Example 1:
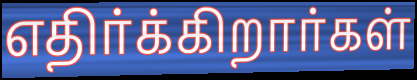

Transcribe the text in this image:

எதிர்க்கிறார்கள்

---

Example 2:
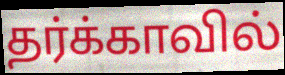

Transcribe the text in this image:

தர்க்காவில்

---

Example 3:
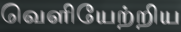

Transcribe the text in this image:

வெளியேற்றிய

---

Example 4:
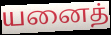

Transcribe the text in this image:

யனைத்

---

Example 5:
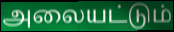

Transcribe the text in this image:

அலையட்டும்